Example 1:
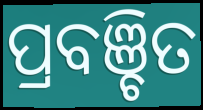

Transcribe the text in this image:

ପ୍ରବଞ୍ଚିତ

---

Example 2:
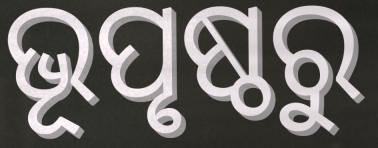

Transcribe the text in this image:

ଭୂପୃଷ୍ଠରୁ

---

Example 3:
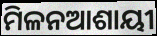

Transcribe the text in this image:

ମିଳନଆଶାୟୀ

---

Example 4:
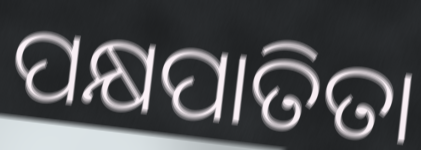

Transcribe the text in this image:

ପକ୍ଷପାତିତା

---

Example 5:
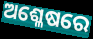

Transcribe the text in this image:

ଅଶ୍ଳେଷରେ